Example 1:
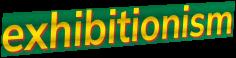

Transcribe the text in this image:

exhibitionism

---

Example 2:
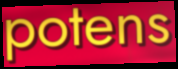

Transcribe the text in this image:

potens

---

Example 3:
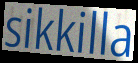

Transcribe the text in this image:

sikkilla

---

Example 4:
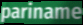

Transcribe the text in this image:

pariname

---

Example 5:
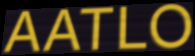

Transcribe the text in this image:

AATLO